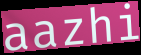
aazhi